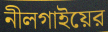
নীলগাইয়ের